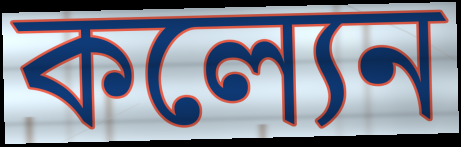
কল্যেন